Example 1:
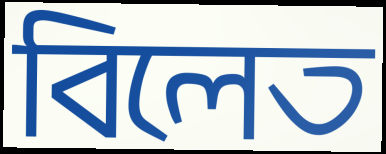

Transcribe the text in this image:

বিলেত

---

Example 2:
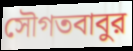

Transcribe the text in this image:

সৌগতবাবুর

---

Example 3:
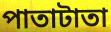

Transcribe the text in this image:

পাতাটাতা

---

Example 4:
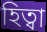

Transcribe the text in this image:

হিত্বা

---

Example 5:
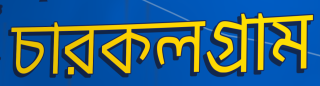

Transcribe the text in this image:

চারকলগ্রাম